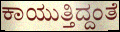
ಕಾಯುತ್ತಿದ್ದಂತೆ